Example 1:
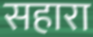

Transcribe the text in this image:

सहारा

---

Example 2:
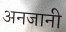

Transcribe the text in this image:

अनजानी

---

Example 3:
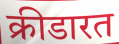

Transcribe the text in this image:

क्रीडारत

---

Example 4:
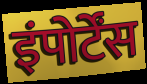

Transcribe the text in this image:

इंपोर्टेंस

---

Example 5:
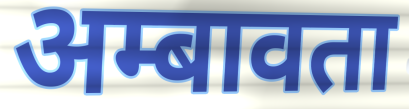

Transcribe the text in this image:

अम्बावता